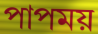
পাপময়